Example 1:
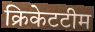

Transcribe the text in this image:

क्रिकेटटीम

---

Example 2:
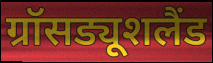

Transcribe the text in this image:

ग्रॉसड्यूशलैंड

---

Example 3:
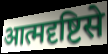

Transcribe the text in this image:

आत्मदृष्टिसे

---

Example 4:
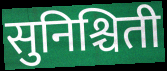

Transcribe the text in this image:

सुनिश्चिती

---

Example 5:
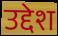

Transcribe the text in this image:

उद्देश